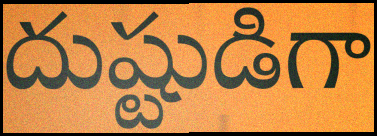
దుష్టుడిగా